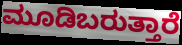
ಮೂಡಿಬರುತ್ತಾರೆ